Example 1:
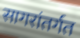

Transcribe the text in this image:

सागरांतर्गत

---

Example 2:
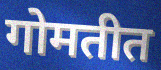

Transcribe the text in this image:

गोमतीत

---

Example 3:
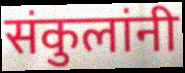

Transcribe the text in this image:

संकुलांनी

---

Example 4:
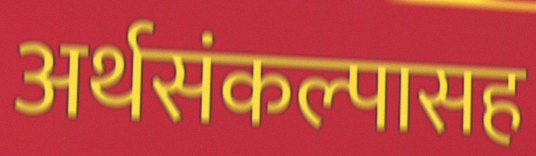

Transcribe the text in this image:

अर्थसंकल्पासह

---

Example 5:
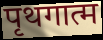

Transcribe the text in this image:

पृथगात्म